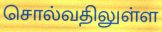
சொல்வதிலுள்ள